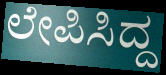
ಲೇಪಿಸಿದ್ದ